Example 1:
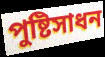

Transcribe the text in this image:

পুষ্টিসাধন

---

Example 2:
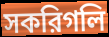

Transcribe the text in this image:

সকরিগলি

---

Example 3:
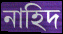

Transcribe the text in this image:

নাহিদ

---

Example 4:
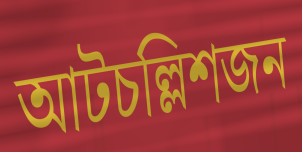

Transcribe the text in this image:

আটচল্লিশজন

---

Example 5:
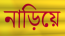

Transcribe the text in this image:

নাড়িয়ে